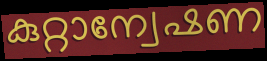
കുറ്റാന്വേഷണ